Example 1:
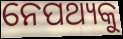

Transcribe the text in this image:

ନେପଥ୍ୟକୁ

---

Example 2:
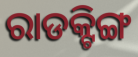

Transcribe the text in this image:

ରାଡକ୍ଟିଙ୍ଗ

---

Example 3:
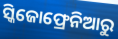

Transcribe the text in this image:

ସ୍କିଜୋଫ୍ରେନିଆରୁ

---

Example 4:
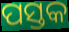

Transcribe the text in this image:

ପସ୍ତକ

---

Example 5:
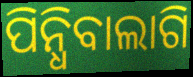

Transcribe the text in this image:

ପିନ୍ଧିବାଲାଗି